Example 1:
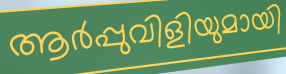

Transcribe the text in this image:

ആർപ്പുവിളിയുമായി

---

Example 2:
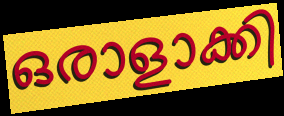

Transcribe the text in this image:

ഒരാളാക്കി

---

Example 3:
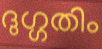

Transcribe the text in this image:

ദുഗ്ഗതിം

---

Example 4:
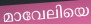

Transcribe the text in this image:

മാവേലിയെ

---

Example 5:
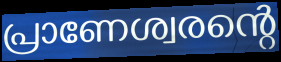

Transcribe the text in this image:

പ്രാണേശ്വരന്റെ